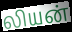
லியன்